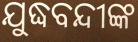
ଯୁଦ୍ଧବନ୍ଦୀଙ୍କ